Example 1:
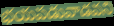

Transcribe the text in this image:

భయపడువాడవని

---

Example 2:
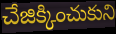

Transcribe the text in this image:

చేజిక్కించుకుని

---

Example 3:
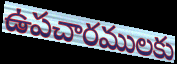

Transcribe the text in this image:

ఉపచారములకు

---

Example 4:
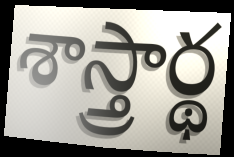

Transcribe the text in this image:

శాస్త్రార్థ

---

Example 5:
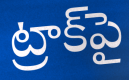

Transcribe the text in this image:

ట్రాక్‌పై